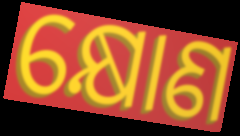
କ୍ଷୋଣ